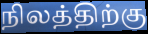
நிலத்திற்கு